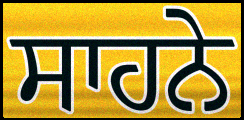
ਸਾਹਨੇ